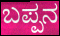
ಬಪ್ಪನ